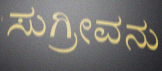
ಸುಗ್ರೀವನು